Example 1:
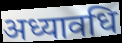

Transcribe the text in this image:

अध्यावधि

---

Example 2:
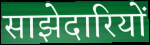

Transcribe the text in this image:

साझेदारियों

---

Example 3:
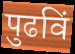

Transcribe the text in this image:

पुढविं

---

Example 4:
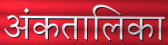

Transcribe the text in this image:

अंकतालिका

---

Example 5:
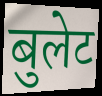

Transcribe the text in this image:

बुलेट